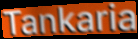
Tankaria